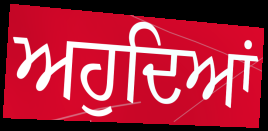
ਅਹੁਦਿਆਂ